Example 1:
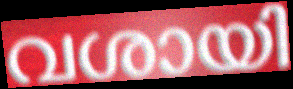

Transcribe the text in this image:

വശായി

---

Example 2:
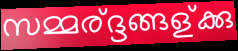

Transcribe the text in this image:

സമ്മര്ദ്ദങ്ങള്ക്കു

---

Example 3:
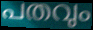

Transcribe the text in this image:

പതവും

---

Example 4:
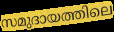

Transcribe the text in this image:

സമുദായത്തിലെ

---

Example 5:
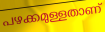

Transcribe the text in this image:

പഴക്കമുള്ളതാണ്